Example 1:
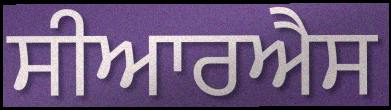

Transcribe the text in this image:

ਸੀਆਰਐਸ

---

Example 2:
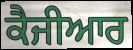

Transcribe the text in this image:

ਕੈਜੀਆਰ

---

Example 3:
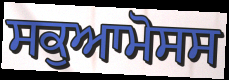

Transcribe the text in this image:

ਸਕੁਆਮੋਸਸ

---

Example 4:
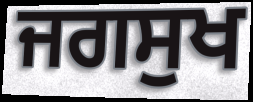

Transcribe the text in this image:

ਜਗਸੁਖ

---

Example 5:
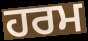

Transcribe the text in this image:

ਹਰਮ